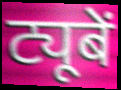
ट्यूबें